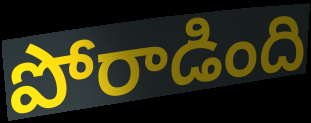
పోరాడింది